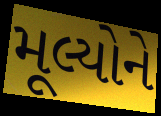
મૂલ્યોને